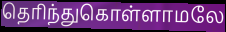
தெரிந்துகொள்ளாமலே